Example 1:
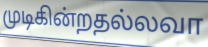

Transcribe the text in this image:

முடிகின்றதல்லவா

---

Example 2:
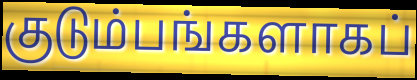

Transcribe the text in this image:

குடும்பங்களாகப்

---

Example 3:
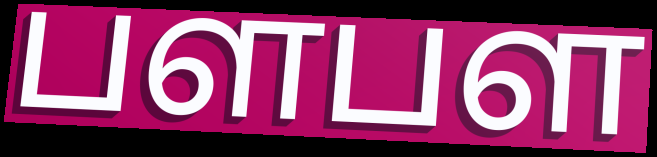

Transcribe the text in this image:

பளபள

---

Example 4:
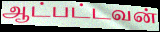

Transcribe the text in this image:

ஆட்பட்டவன்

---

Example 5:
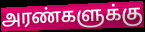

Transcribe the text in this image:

அரண்களுக்கு